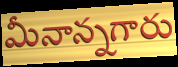
మీనాన్నగారు